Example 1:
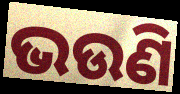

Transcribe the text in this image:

ଭଉଣି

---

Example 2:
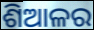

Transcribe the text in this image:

ଶିଆଳର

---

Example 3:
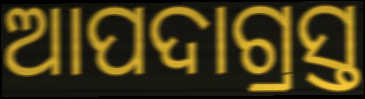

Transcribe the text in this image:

ଆପଦାଗ୍ରସ୍ତ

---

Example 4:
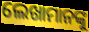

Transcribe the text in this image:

ଲେଖାମାନଙ୍କୁ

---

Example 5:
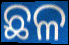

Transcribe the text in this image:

ଛଳ